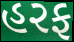
હરફ